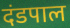
दंडपाल